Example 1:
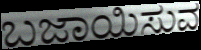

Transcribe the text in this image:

ಬಜಾಯಿಸುವ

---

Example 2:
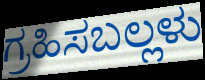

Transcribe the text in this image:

ಗ್ರಹಿಸಬಲ್ಲಳು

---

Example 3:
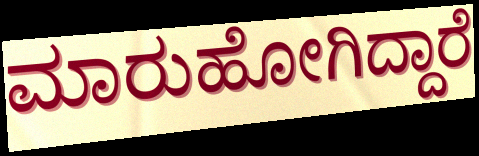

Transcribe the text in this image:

ಮಾರುಹೋಗಿದ್ದಾರೆ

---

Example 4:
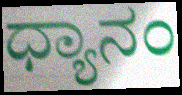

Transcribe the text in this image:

ಧ್ಯಾನಂ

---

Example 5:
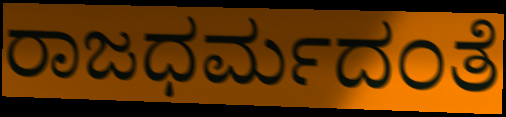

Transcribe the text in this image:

ರಾಜಧರ್ಮದಂತೆ